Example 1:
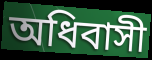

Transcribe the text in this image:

অধিবাসী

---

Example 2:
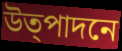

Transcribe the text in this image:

উত্পাদনে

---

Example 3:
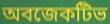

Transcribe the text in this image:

অবজেকটিভ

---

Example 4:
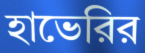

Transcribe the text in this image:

হাভেরির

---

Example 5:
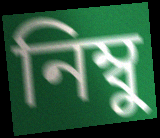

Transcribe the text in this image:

নিম্বু